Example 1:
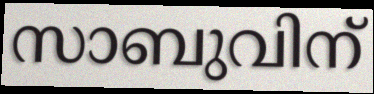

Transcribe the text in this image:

സാബുവിന്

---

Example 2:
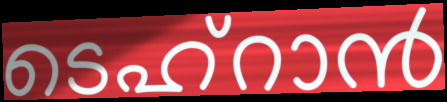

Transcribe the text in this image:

ടെഹ്റാൻ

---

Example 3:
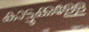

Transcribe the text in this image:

കാട്ടുക്കുള്ളേ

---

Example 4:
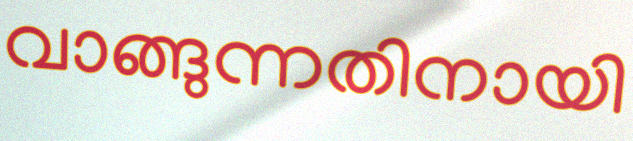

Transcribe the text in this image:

വാങ്ങുന്നതിനായി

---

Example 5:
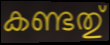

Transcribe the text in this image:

കണ്ടതു്